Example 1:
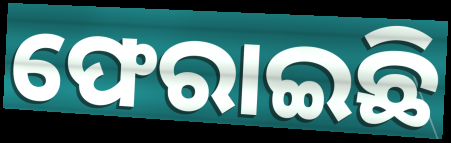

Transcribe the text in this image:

ଫେରାଇଛି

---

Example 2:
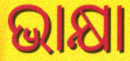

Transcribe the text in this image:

ଭାକ୍ଷା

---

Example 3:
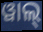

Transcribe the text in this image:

ୱାଲ୍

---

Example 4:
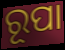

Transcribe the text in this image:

ରୂପା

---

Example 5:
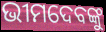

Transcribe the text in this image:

ଭୀମଦେବଙ୍କୁ